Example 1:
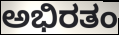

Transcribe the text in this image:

ಅಭಿರತಂ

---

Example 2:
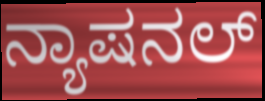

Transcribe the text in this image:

ನ್ಯಾಷನಲ್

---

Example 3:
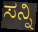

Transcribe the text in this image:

ಸನ್ನಿ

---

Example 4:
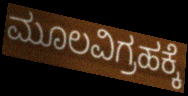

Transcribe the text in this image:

ಮೂಲವಿಗ್ರಹಕ್ಕೆ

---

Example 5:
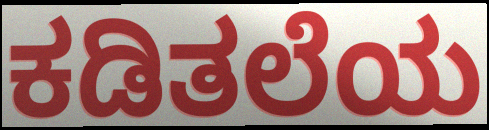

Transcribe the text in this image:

ಕಡಿತಲೆಯ